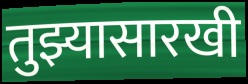
तुझ्यासारखी